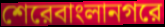
শেরেবাংলানগরে